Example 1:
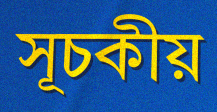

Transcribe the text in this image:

সূচকীয়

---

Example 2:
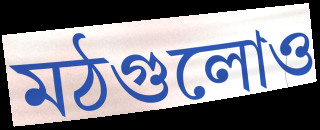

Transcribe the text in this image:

মঠগুলোও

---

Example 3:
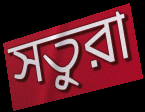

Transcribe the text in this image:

সতুরা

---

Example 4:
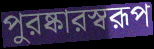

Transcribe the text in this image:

পুরষ্কারস্বরূপ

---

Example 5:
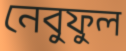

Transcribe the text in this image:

নেবুফুল